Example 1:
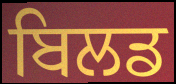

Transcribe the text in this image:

ਬਿਲਡ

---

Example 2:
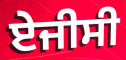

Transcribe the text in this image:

ਏਜੀਸੀ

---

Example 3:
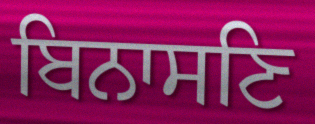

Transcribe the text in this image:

ਬਿਨਾਸਣਿ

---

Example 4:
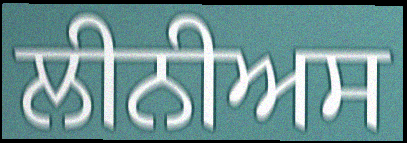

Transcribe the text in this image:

ਲੀਨੀਅਸ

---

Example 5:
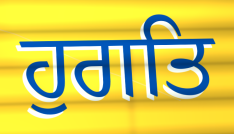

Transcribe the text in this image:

ਹੁਗਤਿ